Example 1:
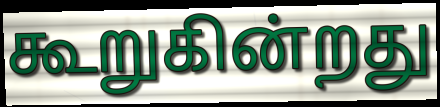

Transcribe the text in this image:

கூறுகின்றது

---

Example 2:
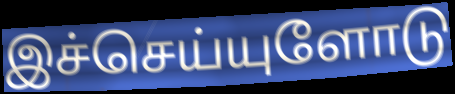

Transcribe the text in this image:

இச்செய்யுளோடு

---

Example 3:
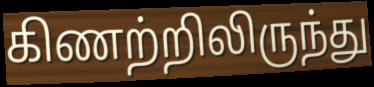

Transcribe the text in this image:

கிணற்றிலிருந்து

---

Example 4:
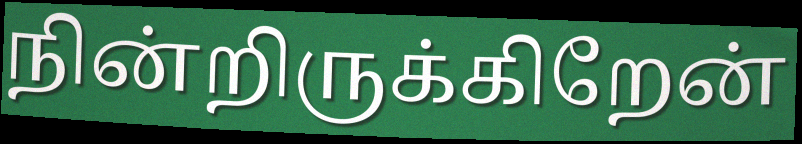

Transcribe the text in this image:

நின்றிருக்கிறேன்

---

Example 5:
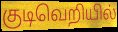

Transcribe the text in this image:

குடிவெறியில்